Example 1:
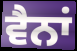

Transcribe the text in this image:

ਵੈਨਾਂ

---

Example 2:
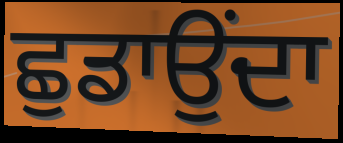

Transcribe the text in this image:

ਛੁਡਾਉਂਦਾ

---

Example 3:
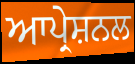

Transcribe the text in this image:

ਆਪ੍ਰੇਸ਼ਨਲ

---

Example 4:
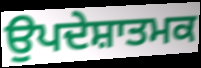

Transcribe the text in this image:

ਉਪਦੇਸ਼ਾਤਮਕ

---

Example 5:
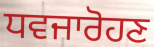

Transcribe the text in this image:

ਧਵਜਾਰੋਹਣ